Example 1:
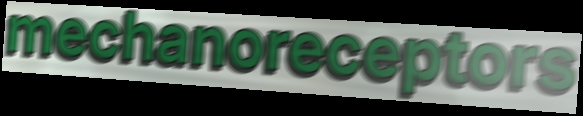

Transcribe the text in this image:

mechanoreceptors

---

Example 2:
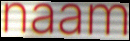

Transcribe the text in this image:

naam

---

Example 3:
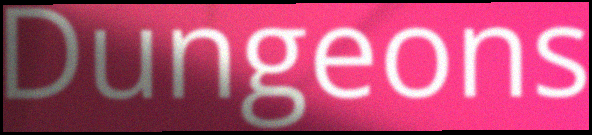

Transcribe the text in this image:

Dungeons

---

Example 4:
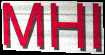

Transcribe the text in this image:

MHI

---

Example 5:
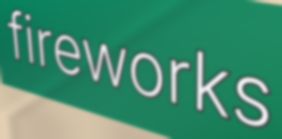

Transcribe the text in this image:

fireworks